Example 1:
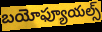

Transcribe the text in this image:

బయోఫ్యూయల్స్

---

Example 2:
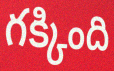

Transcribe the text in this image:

గక్కింది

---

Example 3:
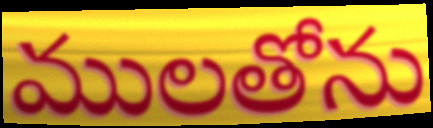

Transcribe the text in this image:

ములతోను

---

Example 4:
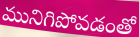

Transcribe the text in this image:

మునిగిపోవడంతో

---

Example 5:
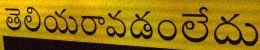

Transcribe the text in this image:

తెలియరావడంలేదు